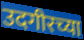
उदगीरच्या